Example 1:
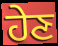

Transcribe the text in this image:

ਹੇਣ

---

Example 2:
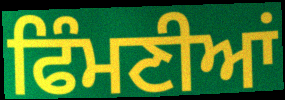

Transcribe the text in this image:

ਫਿੰਮਣੀਆਂ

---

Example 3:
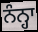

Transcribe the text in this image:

ਨੰਨ੍ਹਾ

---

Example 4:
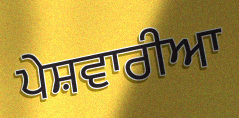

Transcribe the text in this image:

ਪੇਸ਼ਵਾਰੀਆ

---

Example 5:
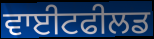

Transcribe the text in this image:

ਵਾਈਟਫੀਲਡ